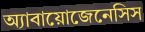
অ্যাবায়োজেনেসিস